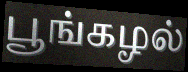
பூங்கழல்